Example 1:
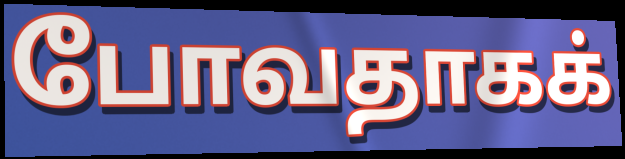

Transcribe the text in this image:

போவதாகக்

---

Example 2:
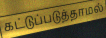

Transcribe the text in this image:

கட்டுப்படுத்தாமல்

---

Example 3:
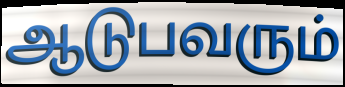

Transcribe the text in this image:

ஆடுபவரும்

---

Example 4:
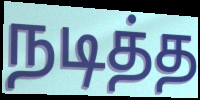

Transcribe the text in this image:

நடித்த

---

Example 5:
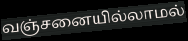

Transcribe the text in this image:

வஞ்சனையில்லாமல்